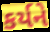
કર્યને